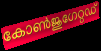
കോൺജുഗേറ്റഡ്